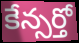
కేన్సర్తో